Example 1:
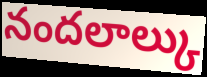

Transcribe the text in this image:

నందలాల్కు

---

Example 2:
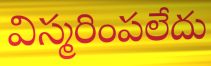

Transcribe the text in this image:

విస్మరింపలేదు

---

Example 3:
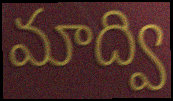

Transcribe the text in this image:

మాద్వి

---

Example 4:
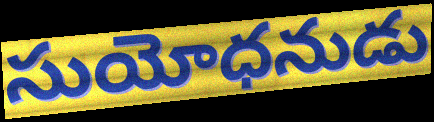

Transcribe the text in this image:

సుయోధనుడు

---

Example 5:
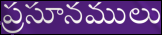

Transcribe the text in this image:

ప్రసూనములు